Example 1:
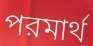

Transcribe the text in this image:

পরমার্থ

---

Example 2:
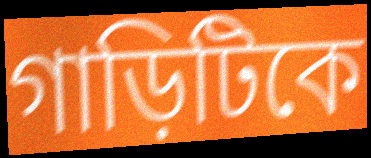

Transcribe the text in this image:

গাড়িটিকে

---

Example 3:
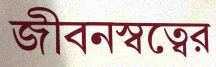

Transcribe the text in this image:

জীবনস্বত্বের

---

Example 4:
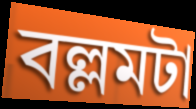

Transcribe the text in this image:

বল্লমটা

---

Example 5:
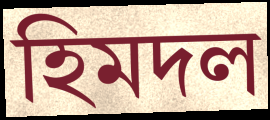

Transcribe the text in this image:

হিমদল